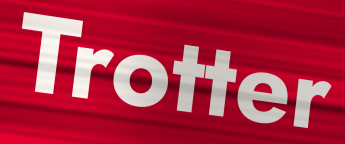
Trotter